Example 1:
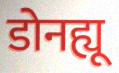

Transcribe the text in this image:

डोनह्यू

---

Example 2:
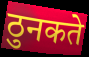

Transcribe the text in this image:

ठुनकते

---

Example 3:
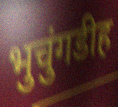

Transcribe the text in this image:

भुचुंगडीह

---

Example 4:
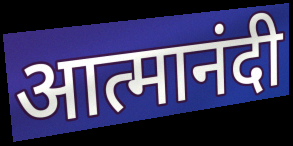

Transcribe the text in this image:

आत्मानंदी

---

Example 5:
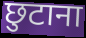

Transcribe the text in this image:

छुटाना